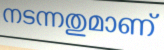
നടന്നതുമാണ്